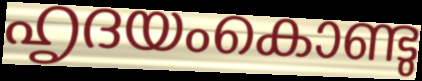
ഹൃദയംകൊണ്ടു